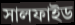
সালফাইড